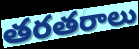
తరతరాలు